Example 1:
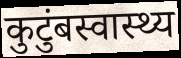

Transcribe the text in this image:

कुटुंबस्वास्थ्य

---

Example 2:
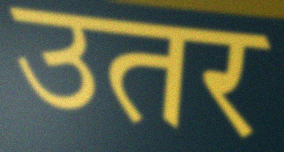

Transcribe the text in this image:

उतर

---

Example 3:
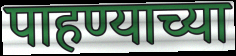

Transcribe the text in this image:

पाहण्याच्या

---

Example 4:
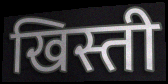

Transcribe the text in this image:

खिस्ती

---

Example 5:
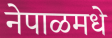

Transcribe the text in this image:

नेपाळमधे